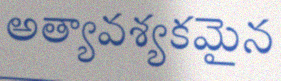
అత్యావశ్యకమైన